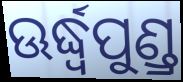
ଊର୍ଦ୍ଧ୍ୱପୁଣ୍ଡ୍ର